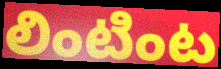
లింటింట